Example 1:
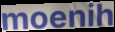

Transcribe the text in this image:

moenih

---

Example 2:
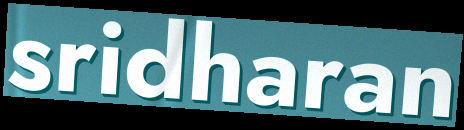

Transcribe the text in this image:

sridharan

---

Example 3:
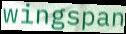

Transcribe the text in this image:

wingspan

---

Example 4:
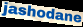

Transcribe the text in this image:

jashodane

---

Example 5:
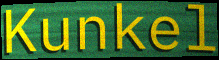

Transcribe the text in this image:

Kunkel